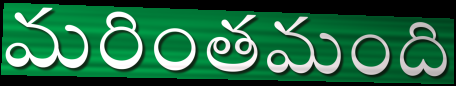
మరింతమంది